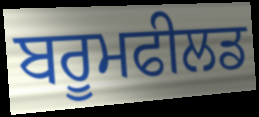
ਬਰੂਮਫੀਲਡ